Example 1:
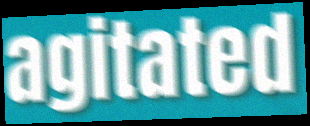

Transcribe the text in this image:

agitated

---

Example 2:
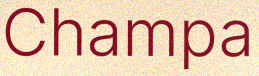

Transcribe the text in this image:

Champa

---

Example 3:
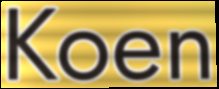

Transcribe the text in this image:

Koen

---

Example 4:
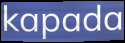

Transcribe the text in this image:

kapada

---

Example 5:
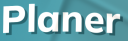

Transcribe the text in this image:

Planer